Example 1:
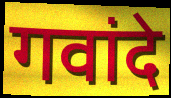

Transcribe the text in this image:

गवांदे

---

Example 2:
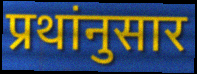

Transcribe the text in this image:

प्रथांनुसार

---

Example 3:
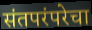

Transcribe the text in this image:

संतपरंपरेचा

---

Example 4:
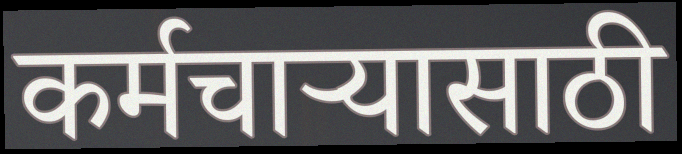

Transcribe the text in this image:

कर्मचाऱ्यासाठी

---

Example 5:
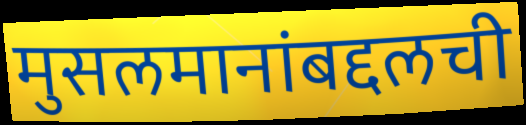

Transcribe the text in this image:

मुसलमानांबद्दलची